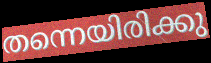
തന്നെയിരിക്കു